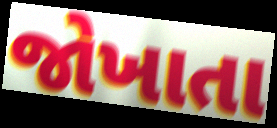
જોખાતા